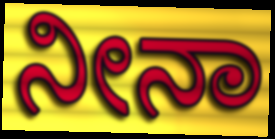
ನೀನಾ